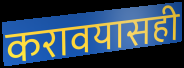
करावयासही